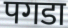
पगडा